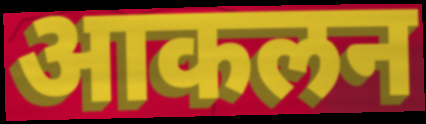
आकलन